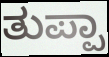
ತುಪ್ಪಾ